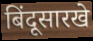
बिंदूसारखे